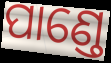
ପାଣ୍ଡେ